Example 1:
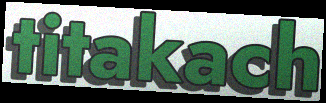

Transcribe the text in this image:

titakach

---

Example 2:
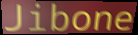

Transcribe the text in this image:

Jibone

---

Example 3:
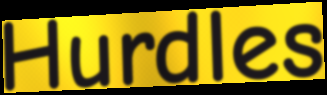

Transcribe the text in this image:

Hurdles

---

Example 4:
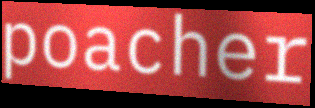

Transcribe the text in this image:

poacher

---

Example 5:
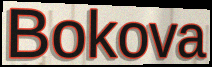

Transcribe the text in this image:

Bokova